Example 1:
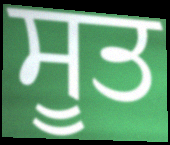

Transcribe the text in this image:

ਸੂਤ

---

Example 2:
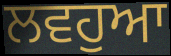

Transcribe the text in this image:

ਲਵਹੁਆ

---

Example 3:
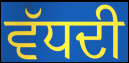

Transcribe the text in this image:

ਵੱਧਦੀ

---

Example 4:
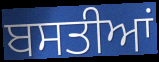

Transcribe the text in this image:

ਬਸਤੀਆਂ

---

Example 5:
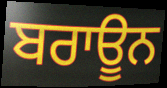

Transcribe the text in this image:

ਬਰਾਊਨ